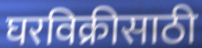
घरविक्रीसाठी